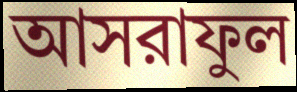
আসরাফুল